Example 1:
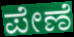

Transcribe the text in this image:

ಪೇಣೆ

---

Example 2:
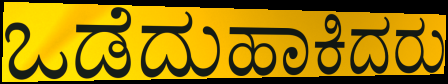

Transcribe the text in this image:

ಒಡೆದುಹಾಕಿದರು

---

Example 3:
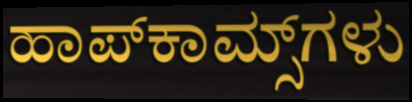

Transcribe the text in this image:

ಹಾಪ್‌ಕಾಮ್ಸ್‌ಗಳು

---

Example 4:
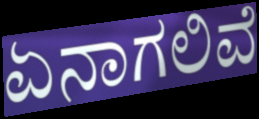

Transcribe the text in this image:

ಏನಾಗಲಿವೆ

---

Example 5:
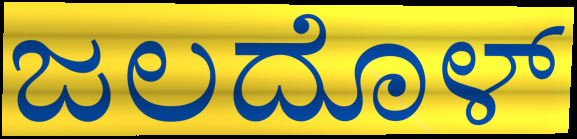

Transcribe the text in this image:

ಜಲದೊಳ್